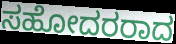
ಸಹೋದರರಾದ